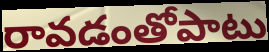
రావడంతోపాటు